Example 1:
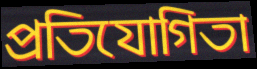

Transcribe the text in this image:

প্রতিযোগিতা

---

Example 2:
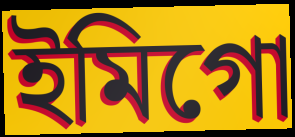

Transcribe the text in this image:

ইমিগো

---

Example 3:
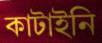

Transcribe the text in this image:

কাটাইনি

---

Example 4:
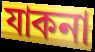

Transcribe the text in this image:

যাকনা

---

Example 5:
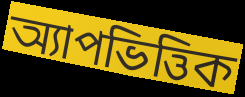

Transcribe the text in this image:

অ্যাপভিত্তিক